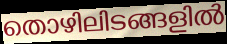
തൊഴിലിടങ്ങളിൽ